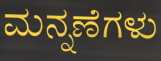
ಮನ್ನಣೆಗಳು